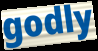
godly